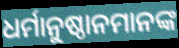
ଧର୍ମାନୁଷ୍ଠାନମାନଙ୍କ